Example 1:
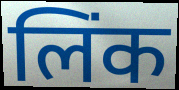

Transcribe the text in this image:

लिंक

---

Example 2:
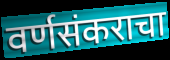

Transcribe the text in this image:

वर्णसंकराचा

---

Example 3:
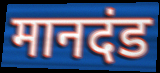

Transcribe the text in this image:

मानदंड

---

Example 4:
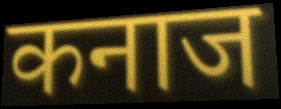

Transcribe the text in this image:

कनाज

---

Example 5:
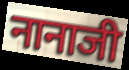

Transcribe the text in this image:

नानाजी